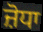
ਜ਼ੋਧਾ